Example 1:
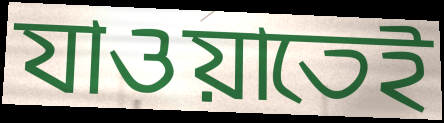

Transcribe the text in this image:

যাওয়াতেই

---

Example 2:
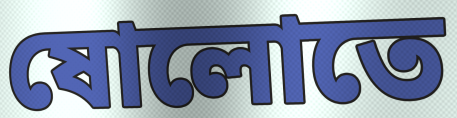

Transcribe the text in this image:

ষোলোতে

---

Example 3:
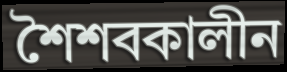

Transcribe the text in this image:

শৈশবকালীন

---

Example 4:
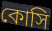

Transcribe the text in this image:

কোসি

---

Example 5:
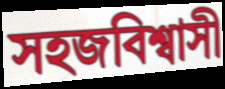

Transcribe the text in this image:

সহজবিশ্বাসী